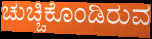
ಚುಚ್ಚಿಕೊಂಡಿರುವ